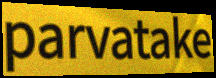
parvatake